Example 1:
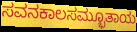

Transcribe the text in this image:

ಸವನಕಾಲಸಮ್ಭೂತಾಯ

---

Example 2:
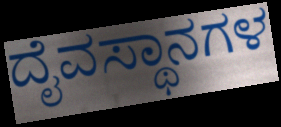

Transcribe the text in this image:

ದೈವಸ್ಥಾನಗಳ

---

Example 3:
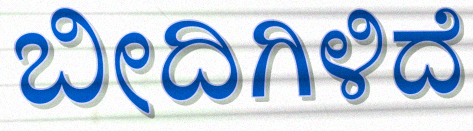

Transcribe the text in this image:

ಬೀದಿಗಿಳಿದೆ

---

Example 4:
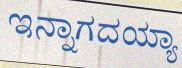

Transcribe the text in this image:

ಇನ್ನಾಗದಯ್ಯಾ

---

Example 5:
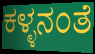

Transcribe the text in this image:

ಕಳ್ಳನಂತೆ